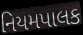
નિયમપાલક